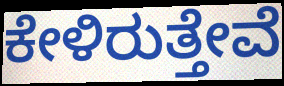
ಕೇಳಿರುತ್ತೇವೆ